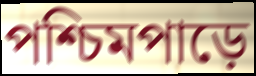
পশ্চিমপাড়ে